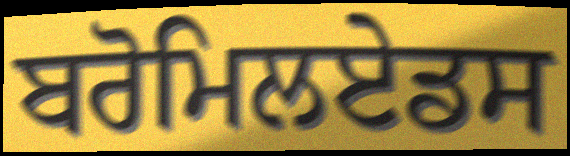
ਬਰੋਮਿਲਏਡਸ